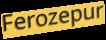
Ferozepur